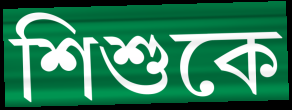
শিশুকে